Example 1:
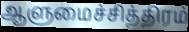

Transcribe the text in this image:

ஆளுமைச்சித்திரம்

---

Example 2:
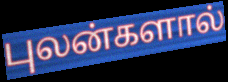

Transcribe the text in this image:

புலன்களால்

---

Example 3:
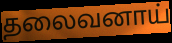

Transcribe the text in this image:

தலைவனாய்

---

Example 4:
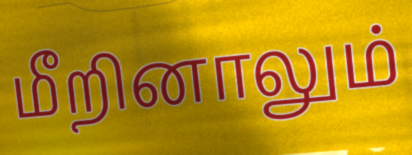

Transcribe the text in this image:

மீறினாலும்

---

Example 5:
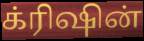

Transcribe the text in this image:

க்ரிஷின்